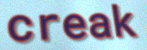
creak